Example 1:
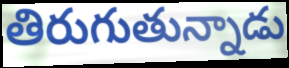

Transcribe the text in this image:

తిరుగుతున్నాడు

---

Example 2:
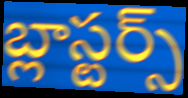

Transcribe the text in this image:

బ్లాస్టర్స్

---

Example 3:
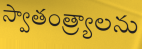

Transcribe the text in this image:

స్వాతంత్ర్యాలను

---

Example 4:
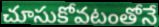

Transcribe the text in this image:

చూసుకోవటంతోనే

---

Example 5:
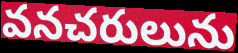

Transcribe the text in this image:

వనచరులును